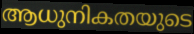
ആധുനികതയുടെ